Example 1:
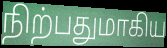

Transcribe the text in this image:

நிற்பதுமாகிய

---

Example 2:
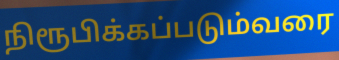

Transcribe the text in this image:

நிரூபிக்கப்படும்வரை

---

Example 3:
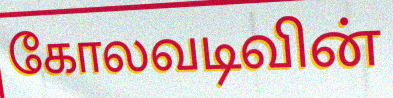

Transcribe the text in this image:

கோலவடிவின்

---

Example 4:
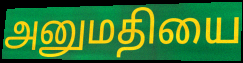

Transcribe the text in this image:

அனுமதியை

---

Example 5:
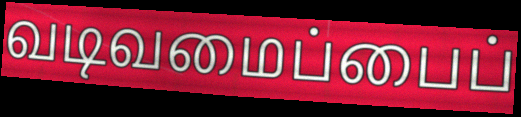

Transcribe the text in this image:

வடிவமைப்பைப்